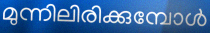
മുന്നിലിരിക്കുമ്പോൾ